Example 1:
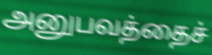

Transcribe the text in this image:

அனுபவத்தைச்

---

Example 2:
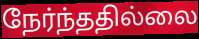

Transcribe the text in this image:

நேர்ந்ததில்லை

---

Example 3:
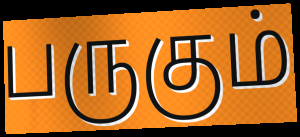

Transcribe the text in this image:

பருகும்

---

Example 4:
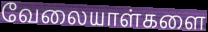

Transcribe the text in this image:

வேலையாள்களை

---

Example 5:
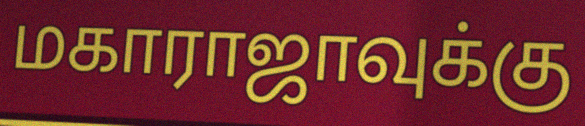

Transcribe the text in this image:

மகாராஜாவுக்கு